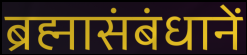
ब्रह्मासंबंधानें